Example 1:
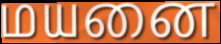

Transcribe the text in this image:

மயனை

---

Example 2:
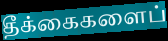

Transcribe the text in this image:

தீக்கைகளைப்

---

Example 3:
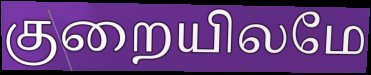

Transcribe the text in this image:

குறையிலமே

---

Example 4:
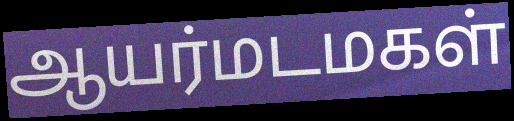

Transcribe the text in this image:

ஆயர்மடமகள்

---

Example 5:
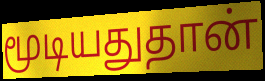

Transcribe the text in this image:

மூடியதுதான்